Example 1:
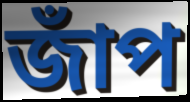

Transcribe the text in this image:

জাঁপ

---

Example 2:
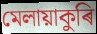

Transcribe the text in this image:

মেলায়াকুৰি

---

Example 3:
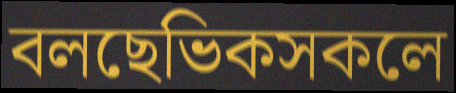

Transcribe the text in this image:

বলছেভিকসকলে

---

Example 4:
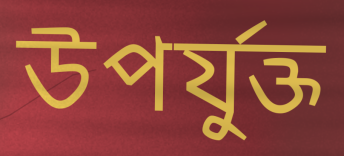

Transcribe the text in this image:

উপৰ্যুক্ত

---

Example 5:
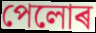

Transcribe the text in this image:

পেলোৰ